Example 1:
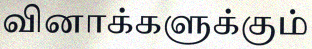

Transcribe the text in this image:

வினாக்களுக்கும்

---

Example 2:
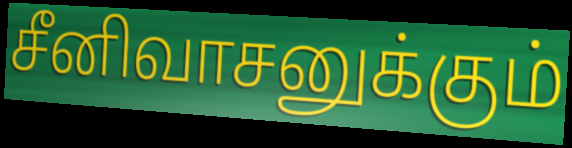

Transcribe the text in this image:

சீனிவாசனுக்கும்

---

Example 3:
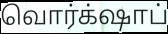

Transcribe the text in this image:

வொர்க்‌ஷாப்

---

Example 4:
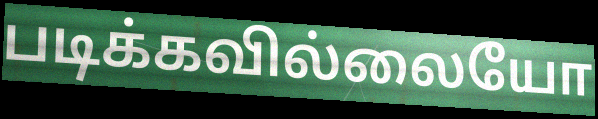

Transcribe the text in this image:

படிக்கவில்லையோ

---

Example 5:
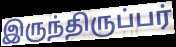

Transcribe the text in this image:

இருந்திருப்பர்